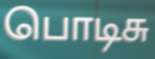
பொடிசு